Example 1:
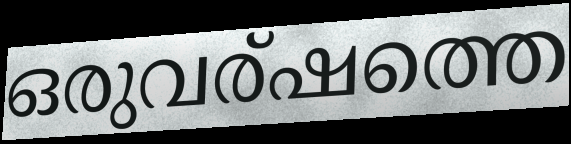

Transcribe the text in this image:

ഒരുവര്ഷത്തെ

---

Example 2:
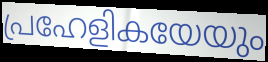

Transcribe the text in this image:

പ്രഹേളികയേയും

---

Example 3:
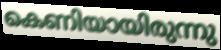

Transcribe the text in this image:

കെണിയായിരുന്നു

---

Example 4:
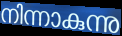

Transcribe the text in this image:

നിന്നാകുന്നു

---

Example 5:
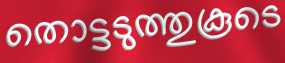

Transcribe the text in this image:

തൊട്ടടുത്തുകൂടെ